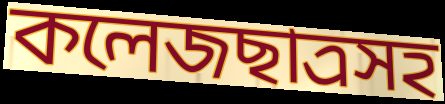
কলেজছাত্রসহ